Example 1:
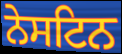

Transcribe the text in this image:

ਨੇਸਟਿਨ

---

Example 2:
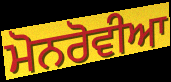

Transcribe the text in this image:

ਮੋਨਰੋਵੀਆ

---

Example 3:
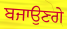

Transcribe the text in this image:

ਬਜਾਉਣਗੇ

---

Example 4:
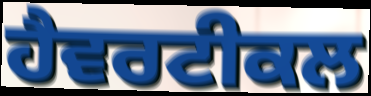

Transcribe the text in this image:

ਹੈਵਰਟੀਕਲ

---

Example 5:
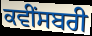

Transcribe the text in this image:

ਕਵੀਂਸਬਰੀ